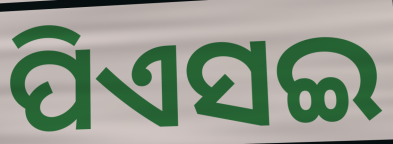
ପିଏସଇ